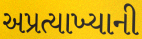
અપ્રત્યાખ્યાની